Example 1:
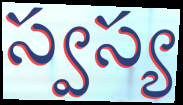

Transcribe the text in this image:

స్వస్య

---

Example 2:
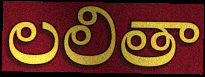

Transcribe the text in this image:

లలితా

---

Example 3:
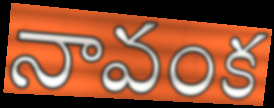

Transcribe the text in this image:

నావంక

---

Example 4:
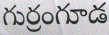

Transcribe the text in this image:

గుర్రంగూడ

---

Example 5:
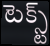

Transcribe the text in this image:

టెక్స్ట్